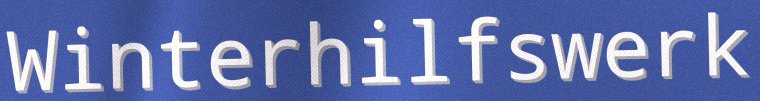
Winterhilfswerk